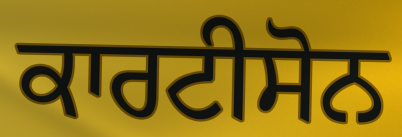
ਕਾਰਟੀਸੋਨ